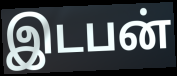
இடபன்